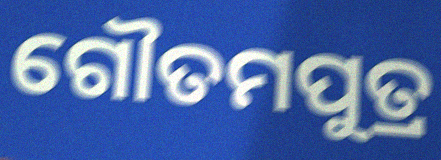
ଗୌତମପୁତ୍ର